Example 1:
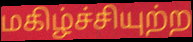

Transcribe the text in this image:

மகிழ்ச்சியுற்ற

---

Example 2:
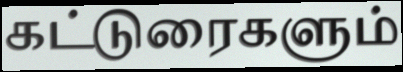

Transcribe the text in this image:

கட்டுரைகளும்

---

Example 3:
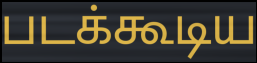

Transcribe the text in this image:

படக்கூடிய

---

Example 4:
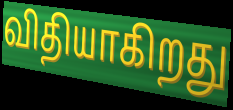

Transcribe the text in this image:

விதியாகிறது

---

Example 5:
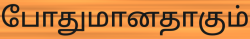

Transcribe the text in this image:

போதுமானதாகும்